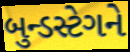
બુન્ડસ્ટેગને